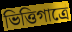
ভিত্তিগাত্রে